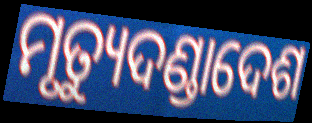
ମୃତ୍ୟୁଦଣ୍ଡାଦେଶ